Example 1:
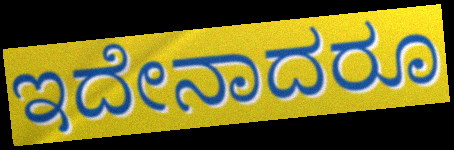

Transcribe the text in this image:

ಇದೇನಾದರೂ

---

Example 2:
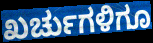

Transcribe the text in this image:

ಖರ್ಚುಗಳಿಗೂ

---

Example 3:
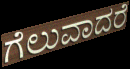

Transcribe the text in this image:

ಗೆಲುವಾದರೆ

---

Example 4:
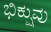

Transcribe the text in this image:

ಭಿಕ್ಷುವು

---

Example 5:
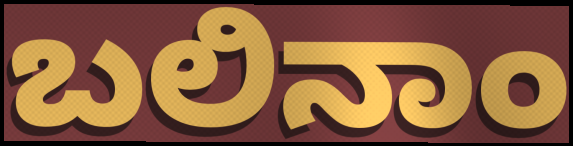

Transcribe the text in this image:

ಬಲಿನಾಂ